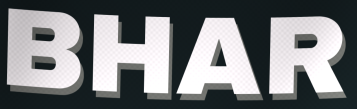
BHAR